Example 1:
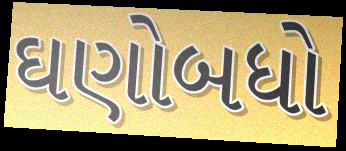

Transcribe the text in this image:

ઘણોબધો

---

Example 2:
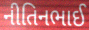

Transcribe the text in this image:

નીતિનભાઈ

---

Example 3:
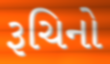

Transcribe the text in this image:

રૂચિનો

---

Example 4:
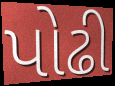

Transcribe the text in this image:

પોઢી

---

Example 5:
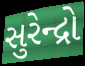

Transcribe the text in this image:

સુરેન્દ્રો